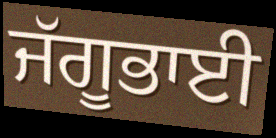
ਜੱਗੂਭਾਈ